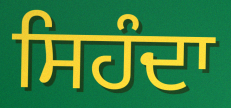
ਸਿਹੰਦਾ